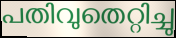
പതിവുതെറ്റിച്ചു